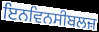
ਇਨਵਿਨਸੀਬਲਜ਼